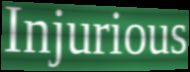
Injurious